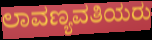
ಲಾವಣ್ಯವತಿಯರು